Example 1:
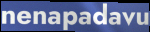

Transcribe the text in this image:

nenapadavu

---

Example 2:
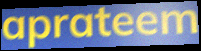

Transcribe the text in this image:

aprateem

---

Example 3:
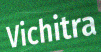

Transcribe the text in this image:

Vichitra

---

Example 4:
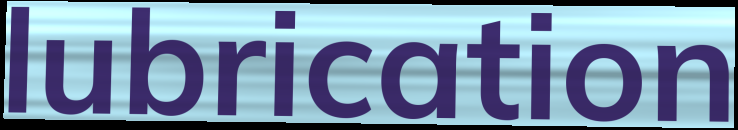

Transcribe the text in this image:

lubrication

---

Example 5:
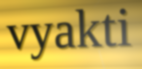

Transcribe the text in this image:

vyakti